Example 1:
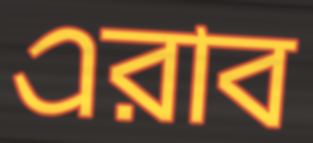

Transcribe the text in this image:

এরাব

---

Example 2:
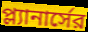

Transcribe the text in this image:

প্ল্যানার্সের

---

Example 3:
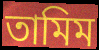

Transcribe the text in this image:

তামিম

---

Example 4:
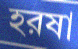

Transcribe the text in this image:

হরষা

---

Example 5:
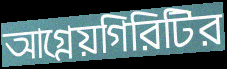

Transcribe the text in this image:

আগ্নেয়গিরিটির